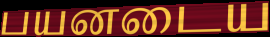
பயனடைய